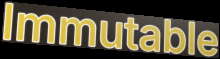
Immutable